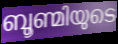
ബൂണ്മിയുടെ